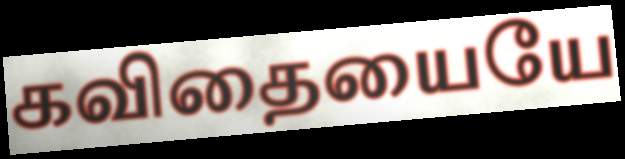
கவிதையையே